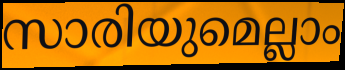
സാരിയുമെല്ലാം